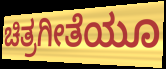
ಚಿತ್ರಗೀತೆಯೂ